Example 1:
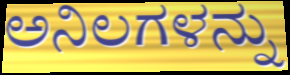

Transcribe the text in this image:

ಅನಿಲಗಳನ್ನು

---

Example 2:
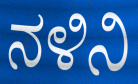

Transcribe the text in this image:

ನಳಿನಿ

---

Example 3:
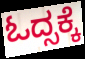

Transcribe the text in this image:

ಓದ್ಸಕ್ಕೆ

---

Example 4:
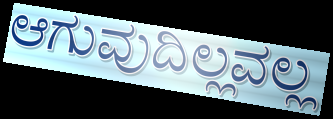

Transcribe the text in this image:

ಆಗುವುದಿಲ್ಲವಲ್ಲ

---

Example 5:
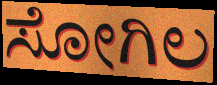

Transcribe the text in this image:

ಸೋಗಿಲ